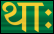
थाः